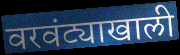
वरवंट्याखाली